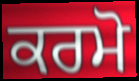
ਕਰਮੋ